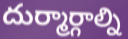
దుర్మార్గాల్ని